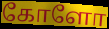
கோளோ